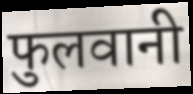
फुलवानी